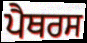
ਪੈਥਰਸ